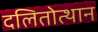
दलितोत्थान